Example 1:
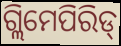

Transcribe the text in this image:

ଗ୍ଲିମେପିରିଡ୍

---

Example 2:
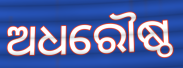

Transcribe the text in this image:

ଅଧରୌଷ୍ଠ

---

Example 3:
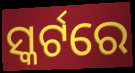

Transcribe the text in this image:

ସ୍କର୍ଟରେ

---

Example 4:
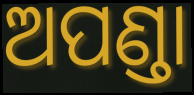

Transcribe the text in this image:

ଅପଣ୍ଡା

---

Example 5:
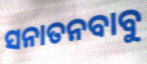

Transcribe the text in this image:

ସନାତନବାବୁ